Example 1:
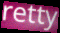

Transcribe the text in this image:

retty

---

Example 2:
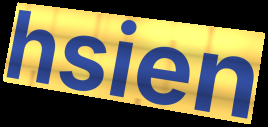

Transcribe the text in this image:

hsien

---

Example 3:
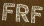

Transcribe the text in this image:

FRF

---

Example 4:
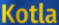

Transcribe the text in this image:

Kotla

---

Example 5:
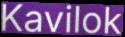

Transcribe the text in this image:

Kavilok